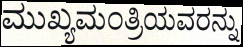
ಮುಖ್ಯಮಂತ್ರಿಯವರನ್ನು